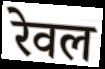
रेवल